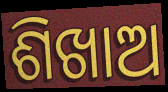
ଶିଖାଅ